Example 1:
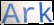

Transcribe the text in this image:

Ark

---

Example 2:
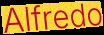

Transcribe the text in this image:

Alfredo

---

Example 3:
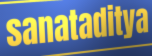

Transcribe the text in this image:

sanataditya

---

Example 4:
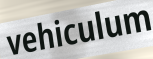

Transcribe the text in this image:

vehiculum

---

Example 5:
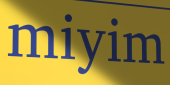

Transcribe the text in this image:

miyim